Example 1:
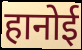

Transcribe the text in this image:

हानोई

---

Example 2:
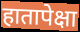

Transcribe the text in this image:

हातापेक्षा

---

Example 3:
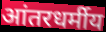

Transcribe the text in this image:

आंतरधर्मीय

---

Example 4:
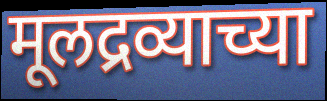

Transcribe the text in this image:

मूलद्रव्याच्या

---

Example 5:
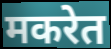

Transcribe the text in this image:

मकरेत